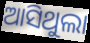
ଆସିଥୁଲା